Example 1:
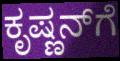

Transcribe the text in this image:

ಕೃಷ್ಣನ್‌ಗೆ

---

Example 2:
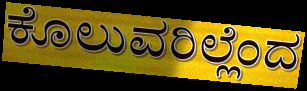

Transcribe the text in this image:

ಕೊಲುವರಿಲ್ಲೆಂದ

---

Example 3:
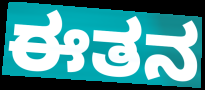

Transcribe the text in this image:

ಈತನ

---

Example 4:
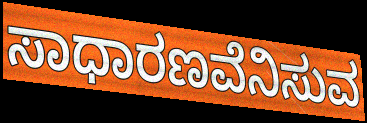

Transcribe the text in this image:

ಸಾಧಾರಣವೆನಿಸುವ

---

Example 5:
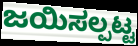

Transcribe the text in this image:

ಜಯಿಸಲ್ಪಟ್ಟ